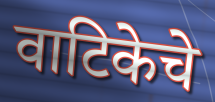
वाटिकेचे